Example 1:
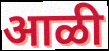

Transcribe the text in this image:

आळी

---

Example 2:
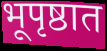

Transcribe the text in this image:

भूपृष्ठात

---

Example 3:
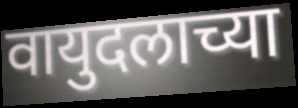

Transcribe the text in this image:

वायुदलाच्या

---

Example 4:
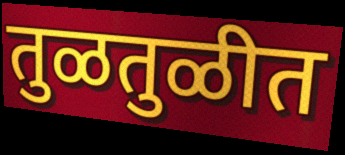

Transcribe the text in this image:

तुळतुळीत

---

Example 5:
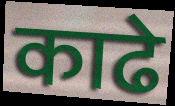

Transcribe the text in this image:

काढे